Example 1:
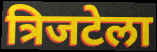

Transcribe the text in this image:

त्रिजटेला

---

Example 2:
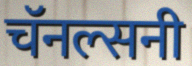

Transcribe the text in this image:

चॅनल्सनी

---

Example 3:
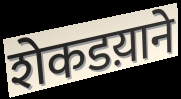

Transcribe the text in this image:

शेकडय़ाने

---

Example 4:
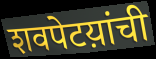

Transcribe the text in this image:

शवपेटय़ांची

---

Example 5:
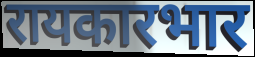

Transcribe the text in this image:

रायकारभार